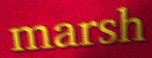
marsh